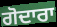
ਗੋਦਾਰਾ